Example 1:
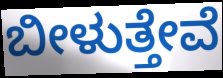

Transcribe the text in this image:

ಬೀಳುತ್ತೇವೆ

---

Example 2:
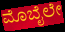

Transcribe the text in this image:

ಮೊಬೈಲೇ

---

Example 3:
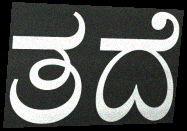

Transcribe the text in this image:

ತದೆ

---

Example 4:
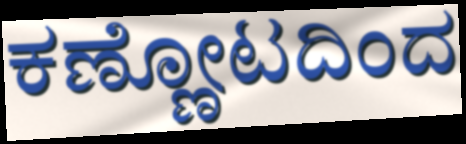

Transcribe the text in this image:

ಕಣ್ಣೋಟದಿಂದ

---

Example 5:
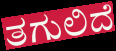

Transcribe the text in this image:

ತಗುಲಿದೆ